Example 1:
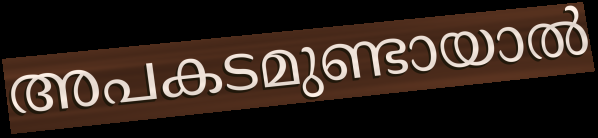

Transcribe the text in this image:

അപകടമുണ്ടായാൽ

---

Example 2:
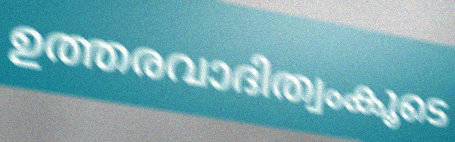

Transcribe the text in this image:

ഉത്തരവാദിത്വംകൂടെ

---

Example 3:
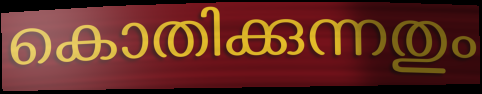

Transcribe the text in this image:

കൊതിക്കുന്നതും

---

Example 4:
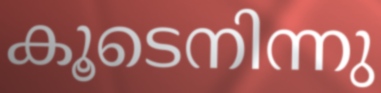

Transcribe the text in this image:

കൂടെനിന്നു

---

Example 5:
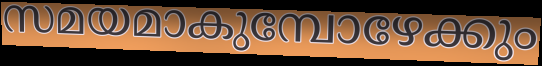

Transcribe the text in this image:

സമയമാകുമ്പോഴേക്കും